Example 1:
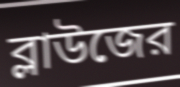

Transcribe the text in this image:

ব্লাউজের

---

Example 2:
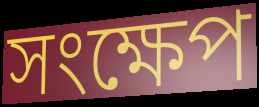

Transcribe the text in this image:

সংক্ষেপ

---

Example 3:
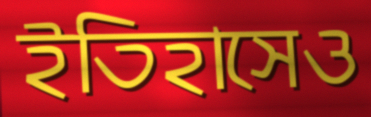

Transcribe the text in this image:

ইতিহাসেও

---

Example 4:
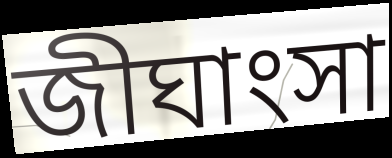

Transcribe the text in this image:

জীঘাংসা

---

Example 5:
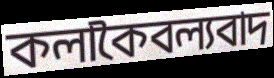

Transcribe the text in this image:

কলাকৈবল্যবাদ